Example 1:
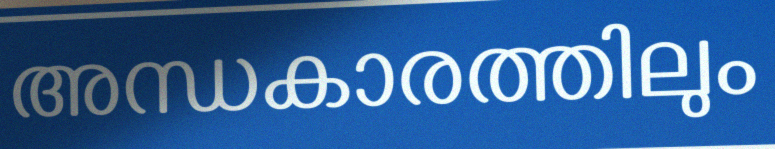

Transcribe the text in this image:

അന്ധകാരത്തിലും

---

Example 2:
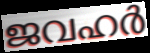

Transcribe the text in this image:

ജവഹർ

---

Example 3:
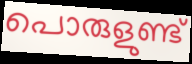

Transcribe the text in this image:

പൊരുളുണ്ട്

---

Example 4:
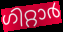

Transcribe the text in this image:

ഗിറ്റാർ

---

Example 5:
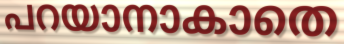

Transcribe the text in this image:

പറയാനാകാതെ